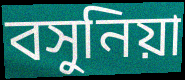
বসুনিয়া